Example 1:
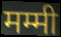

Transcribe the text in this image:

मम्मी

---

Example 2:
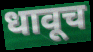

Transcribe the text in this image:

धावूच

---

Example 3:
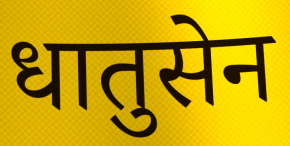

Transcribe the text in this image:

धातुसेन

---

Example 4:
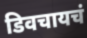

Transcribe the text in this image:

डिवचायचं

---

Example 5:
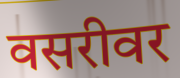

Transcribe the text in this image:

वसरीवर